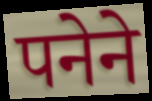
पनेने